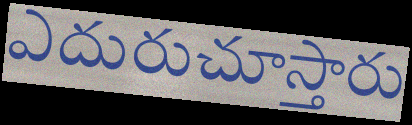
ఎదురుచూస్తారు